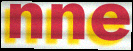
nne